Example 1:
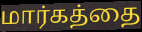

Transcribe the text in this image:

மார்கத்தை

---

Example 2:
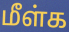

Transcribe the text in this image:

மீள்க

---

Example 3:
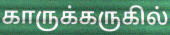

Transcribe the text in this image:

காருக்கருகில்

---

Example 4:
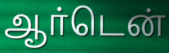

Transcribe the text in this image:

ஆர்டென்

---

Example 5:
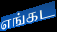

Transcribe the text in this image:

எங்கட